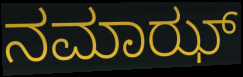
ನಮಾಝ್